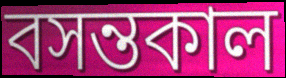
বসন্তকাল